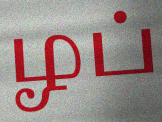
ழப்